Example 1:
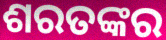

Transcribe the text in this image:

ଶରତଙ୍କର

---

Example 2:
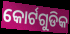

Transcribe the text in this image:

କୋର୍ଟଗୁଡିକ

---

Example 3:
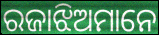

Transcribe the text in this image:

ରଜାଝିଅମାନେ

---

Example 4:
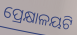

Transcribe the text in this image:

ପ୍ରେକ୍ଷାଳୟଟି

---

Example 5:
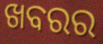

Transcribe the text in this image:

ଖବରର